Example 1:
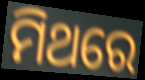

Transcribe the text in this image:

ମିଥରେ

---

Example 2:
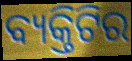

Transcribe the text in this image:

ବ୍ୟକ୍ତିଟିର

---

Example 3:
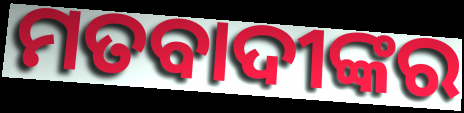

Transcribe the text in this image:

ମତବାଦୀଙ୍କର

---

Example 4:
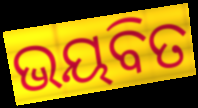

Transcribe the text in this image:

ଭୟବିତ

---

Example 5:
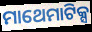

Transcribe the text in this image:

ମାଥେମାଟିକ୍ସ